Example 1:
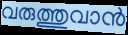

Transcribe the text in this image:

വരുത്തുവാൻ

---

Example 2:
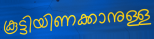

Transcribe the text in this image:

കൂട്ടിയിണക്കാനുള്ള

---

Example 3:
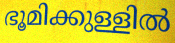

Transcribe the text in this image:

ഭൂമിക്കുള്ളിൽ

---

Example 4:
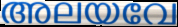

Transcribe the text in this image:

അലയവേ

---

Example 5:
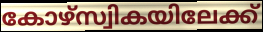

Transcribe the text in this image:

കോഴ്സ്വികയിലേക്ക്